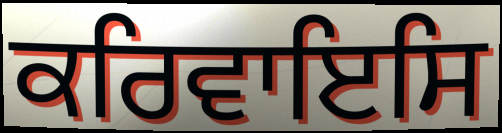
ਕਰਿਵਾਇਸਿ